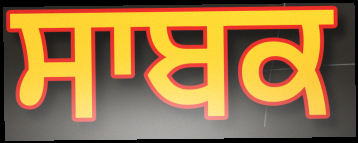
ਸਾਬਕ